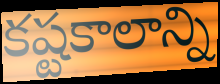
కష్టకాలాన్ని